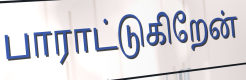
பாராட்டுகிறேன்